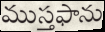
ముస్తఫాను